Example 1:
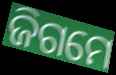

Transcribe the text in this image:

ଜିଗମେ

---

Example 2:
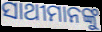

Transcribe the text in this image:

ସାଥୀମାନଙ୍କୁ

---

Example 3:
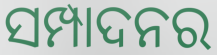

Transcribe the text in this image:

ସମ୍ପାଦନର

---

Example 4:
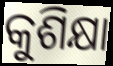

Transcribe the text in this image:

କୁଶିକ୍ଷା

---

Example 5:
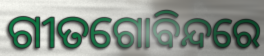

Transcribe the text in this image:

ଗୀତଗୋବିନ୍ଦରେ